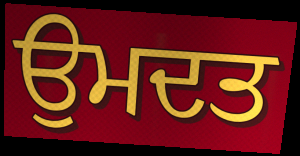
ਉਮਦਤ